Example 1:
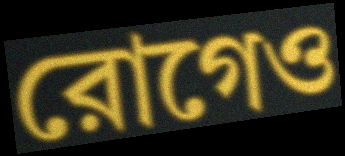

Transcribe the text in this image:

রোগেও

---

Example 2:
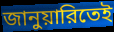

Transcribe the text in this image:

জানুয়ারিতেই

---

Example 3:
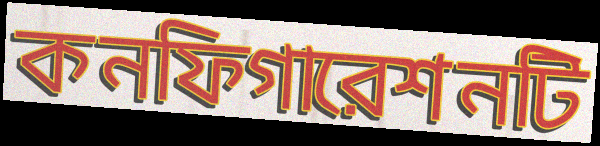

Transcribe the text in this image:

কনফিগারেশনটি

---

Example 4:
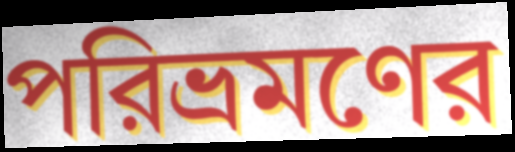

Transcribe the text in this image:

পরিভ্রমণের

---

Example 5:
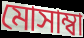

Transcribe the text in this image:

মোসাম্বা